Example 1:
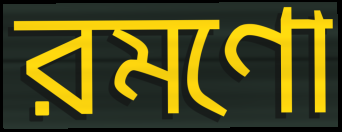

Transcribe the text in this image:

রমণো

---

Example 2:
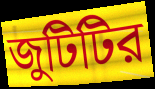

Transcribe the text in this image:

জুটিটির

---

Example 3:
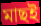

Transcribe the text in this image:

মাছই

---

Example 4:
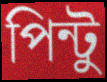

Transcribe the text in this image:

পিন্টু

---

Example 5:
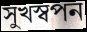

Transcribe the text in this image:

সুখস্বপন